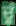
ਚੂੰ